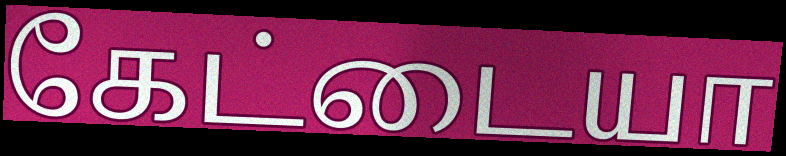
கேட்டையா